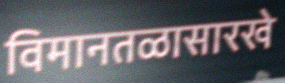
विमानतळासारखे